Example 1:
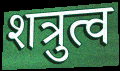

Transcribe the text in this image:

शत्रुत्व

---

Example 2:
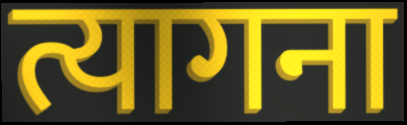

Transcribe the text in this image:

त्यागना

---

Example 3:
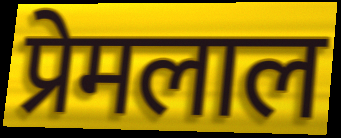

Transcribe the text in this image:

प्रेमलाल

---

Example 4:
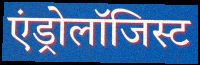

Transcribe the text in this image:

एंड्रोलॉजिस्ट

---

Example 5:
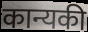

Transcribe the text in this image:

कान्यकी